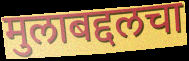
मुलाबद्दलचा